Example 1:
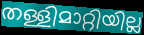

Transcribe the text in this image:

തള്ളിമാറ്റിയില്ല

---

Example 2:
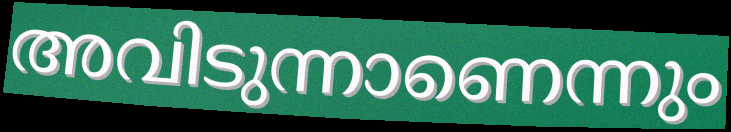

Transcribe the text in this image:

അവിടുന്നാണെന്നും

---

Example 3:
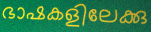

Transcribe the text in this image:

ഭാഷകളിലേക്കു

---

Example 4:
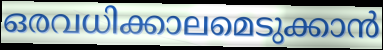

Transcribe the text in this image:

ഒരവധിക്കാലമെടുക്കാൻ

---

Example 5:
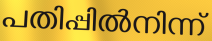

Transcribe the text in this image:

പതിപ്പിൽനിന്ന്